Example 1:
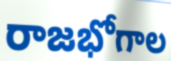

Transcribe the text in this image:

రాజభోగాల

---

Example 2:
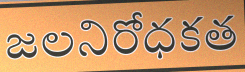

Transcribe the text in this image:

జలనిరోధకత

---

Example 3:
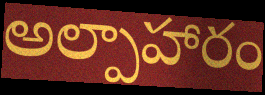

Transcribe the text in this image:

అల్పాహారం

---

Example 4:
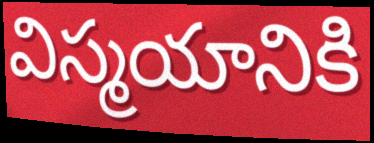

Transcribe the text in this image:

విస్మయానికి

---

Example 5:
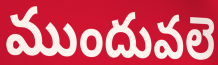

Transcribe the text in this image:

ముందువలె